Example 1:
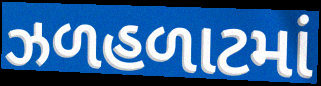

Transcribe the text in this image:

ઝળહળાટમાં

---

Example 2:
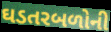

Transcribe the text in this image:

ઘડતરબળોની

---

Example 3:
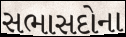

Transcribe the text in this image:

સભાસદોના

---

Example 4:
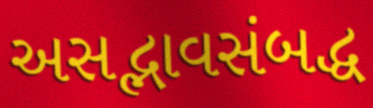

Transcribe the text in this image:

અસદ્ભાવસંબદ્ધ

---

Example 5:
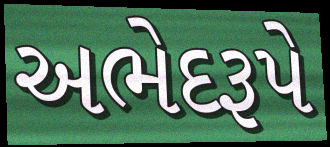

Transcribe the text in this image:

અભેદરૂપે